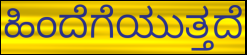
ಹಿಂದೆಗೆಯುತ್ತದೆ